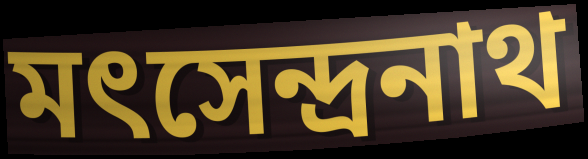
মৎসেন্দ্রনাথ